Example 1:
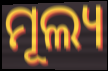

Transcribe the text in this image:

ମୂଲ୍ୟ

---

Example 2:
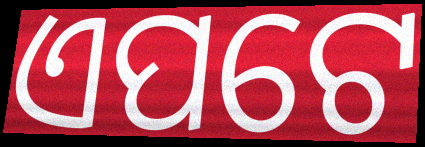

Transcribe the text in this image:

ଏପଟେ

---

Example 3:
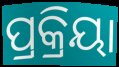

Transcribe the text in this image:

ପ୍ରକ୍ରିୟା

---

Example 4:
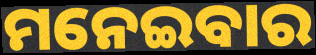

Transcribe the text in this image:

ମନେଇବାର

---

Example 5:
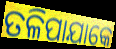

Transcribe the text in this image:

ତଳିପାଯାକେ